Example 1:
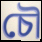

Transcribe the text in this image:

চৌ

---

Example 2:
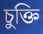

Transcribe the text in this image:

চুক্তি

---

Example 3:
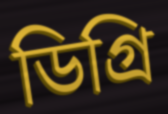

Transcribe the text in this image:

ডিগ্ৰি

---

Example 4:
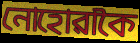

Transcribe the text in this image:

নোহোৱাকৈ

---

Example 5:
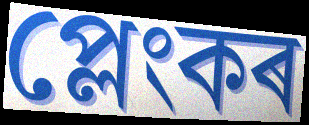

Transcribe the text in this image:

প্লেংকৰ